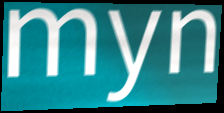
myn